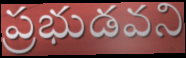
ప్రభుడవని